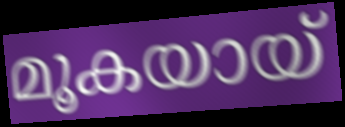
മൂകയായ്